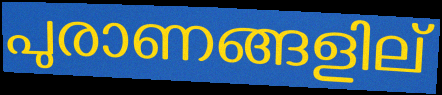
പുരാണങ്ങളില്